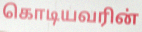
கொடியவரின்